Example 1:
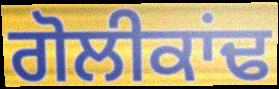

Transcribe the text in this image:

ਗੋਲੀਕਾਂਢ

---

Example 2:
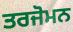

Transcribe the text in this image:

ਤਰਜੋਮਨ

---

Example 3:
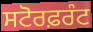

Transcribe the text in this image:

ਸਟੋਰਫ਼ਰੰਟ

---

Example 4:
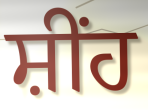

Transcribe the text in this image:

ਸ਼ੀਂਹ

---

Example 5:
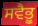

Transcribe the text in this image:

ਸਵੈਭੂ